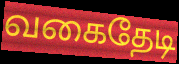
வகைதேடி